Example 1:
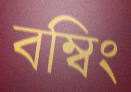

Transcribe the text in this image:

বম্বিং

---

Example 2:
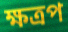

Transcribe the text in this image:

ক্ষত্রপ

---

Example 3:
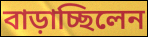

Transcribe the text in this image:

বাড়াচ্ছিলেন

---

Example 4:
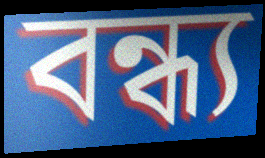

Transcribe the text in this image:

বন্ধ্য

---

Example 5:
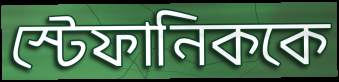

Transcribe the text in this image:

স্টেফানিককে